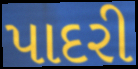
પાદરી